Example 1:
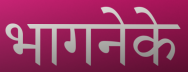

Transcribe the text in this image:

भागनेके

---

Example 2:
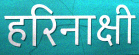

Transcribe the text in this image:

हरिनाक्षी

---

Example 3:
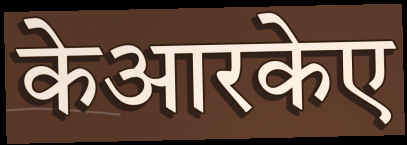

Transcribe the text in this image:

केआरकेए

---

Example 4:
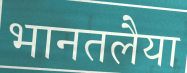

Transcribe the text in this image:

भानतलैया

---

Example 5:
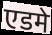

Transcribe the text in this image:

एडमे